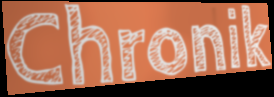
Chronik